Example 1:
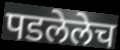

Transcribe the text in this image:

पडलेलेच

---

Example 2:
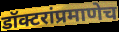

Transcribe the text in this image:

डॉक्टरांप्रमाणेच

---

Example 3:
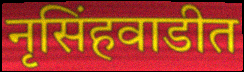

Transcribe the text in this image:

नृसिंहवाडीत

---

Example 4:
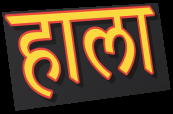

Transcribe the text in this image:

हाला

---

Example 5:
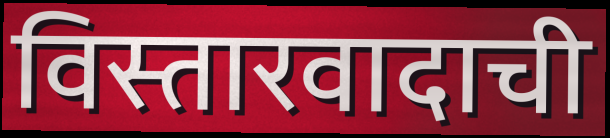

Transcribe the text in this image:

विस्तारवादाची